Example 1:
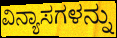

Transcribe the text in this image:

ವಿನ್ಯಾಸಗಳನ್ನು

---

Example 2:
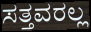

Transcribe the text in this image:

ಸತ್ತವರಲ್ಲ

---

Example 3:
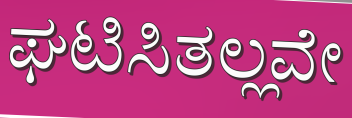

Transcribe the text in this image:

ಘಟಿಸಿತಲ್ಲವೇ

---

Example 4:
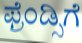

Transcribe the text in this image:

ಫ್ರೆಂಡ್ಸಿಗೆ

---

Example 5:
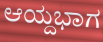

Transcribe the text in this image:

ಆಯ್ದಭಾಗ